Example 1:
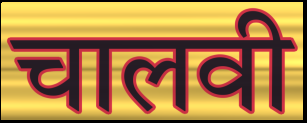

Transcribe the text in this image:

चालवी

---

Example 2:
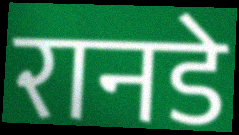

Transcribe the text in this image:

रानडे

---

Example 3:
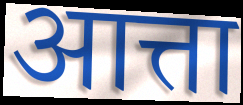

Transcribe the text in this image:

आत्ता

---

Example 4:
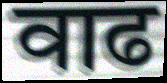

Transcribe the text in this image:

वाढ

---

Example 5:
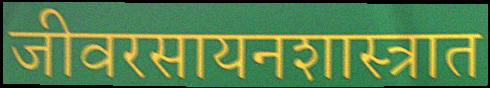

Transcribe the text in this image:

जीवरसायनशास्त्रात